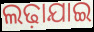
ଲଢ଼ାଯାଇ